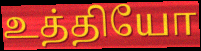
உத்தியோ